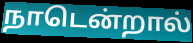
நாடென்றால்